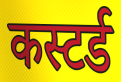
कस्टर्ड